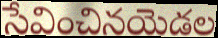
సేవించినయెడల